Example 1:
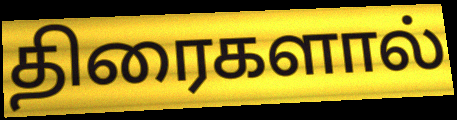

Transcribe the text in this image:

திரைகளால்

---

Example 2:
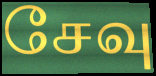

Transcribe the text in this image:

சேவு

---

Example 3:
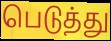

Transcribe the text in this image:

பெடுத்து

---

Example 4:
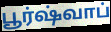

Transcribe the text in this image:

பூர்ஷ்வாப்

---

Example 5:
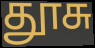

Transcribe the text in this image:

தூசு